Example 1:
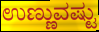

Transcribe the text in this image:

ಉಣ್ಣುವಷ್ಟು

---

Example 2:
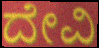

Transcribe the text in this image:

ದೇವಿ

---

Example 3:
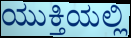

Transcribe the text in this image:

ಯುಕ್ತಿಯಲ್ಲಿ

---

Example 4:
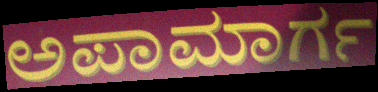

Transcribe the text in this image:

ಅಪಾಮಾರ್ಗ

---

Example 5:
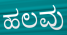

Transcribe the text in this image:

ಹಲವು